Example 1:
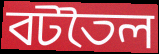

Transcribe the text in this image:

বটতৈল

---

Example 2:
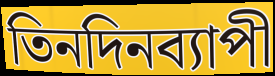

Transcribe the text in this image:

তিনদিনব্যাপী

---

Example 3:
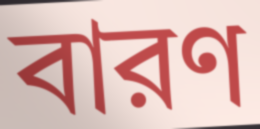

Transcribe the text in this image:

বারণ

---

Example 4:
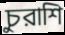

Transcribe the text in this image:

চুরাশি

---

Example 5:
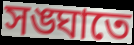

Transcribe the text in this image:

সঙ্ঘাতে